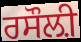
ਰਸੌਲ਼ੀ